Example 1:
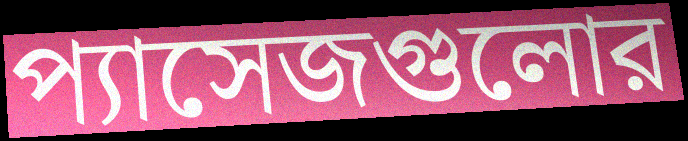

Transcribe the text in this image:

প্যাসেজগুলোর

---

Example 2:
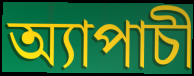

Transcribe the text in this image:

অ্যাপাচী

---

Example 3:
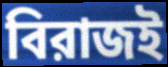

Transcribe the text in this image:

বিরাজই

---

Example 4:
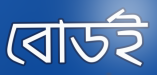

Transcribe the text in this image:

বোর্ডই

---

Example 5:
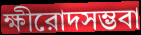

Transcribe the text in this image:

ক্ষীরোদসম্ভবা